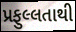
પ્રફુલ્લતાથી